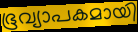
ഭൂവ്യാപകമായി